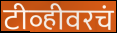
टीव्हीवरचं